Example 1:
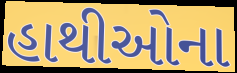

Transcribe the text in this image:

હાથીઓના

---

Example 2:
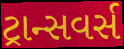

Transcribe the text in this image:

ટ્રાન્સવર્સ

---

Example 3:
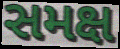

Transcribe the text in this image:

સમક્ષ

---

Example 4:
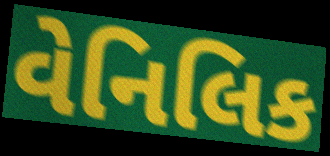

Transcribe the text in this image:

વેનિલિક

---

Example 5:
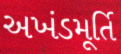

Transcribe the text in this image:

અખંડમૂર્તિ